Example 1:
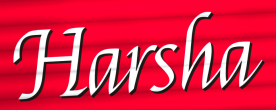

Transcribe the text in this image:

Harsha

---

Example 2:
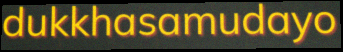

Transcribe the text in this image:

dukkhasamudayo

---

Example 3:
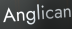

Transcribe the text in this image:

Anglican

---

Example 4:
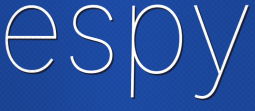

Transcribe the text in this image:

espy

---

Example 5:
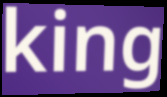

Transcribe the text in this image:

king